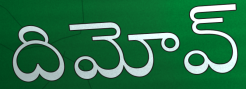
దిమోవ్